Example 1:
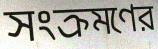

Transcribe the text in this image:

সংক্রমণের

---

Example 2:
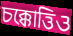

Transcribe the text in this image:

চক্কোত্তিও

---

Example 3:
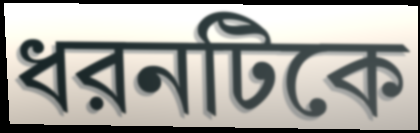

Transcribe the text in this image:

ধরনটিকে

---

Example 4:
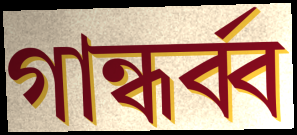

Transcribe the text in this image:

গান্ধর্ব্ব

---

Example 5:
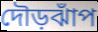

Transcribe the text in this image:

দৌড়ঝাঁপ